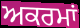
ਅਕਰਮਾਂ